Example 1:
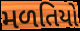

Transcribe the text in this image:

મળતિયો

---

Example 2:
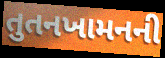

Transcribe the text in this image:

તુતનખામનની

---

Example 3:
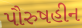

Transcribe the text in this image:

પૌરુષહીન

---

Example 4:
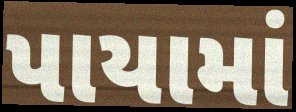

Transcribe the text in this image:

પાયામાં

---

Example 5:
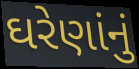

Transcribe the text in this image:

ઘરેણાંનું